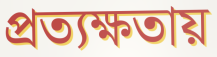
প্রত্যক্ষতায়